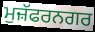
ਮੁਜ਼ੱਫਰਨਗਰ